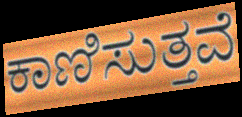
ಕಾಣಿಸುತ್ತವೆ